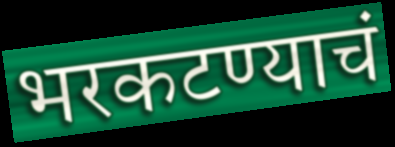
भरकटण्याचं